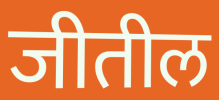
जीतील